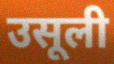
उसूली